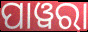
ପାୱରା